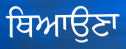
ਥਿਆਉਣਾ